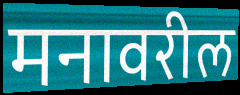
मनावरील